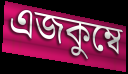
এজকুম্বে